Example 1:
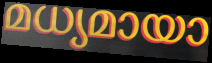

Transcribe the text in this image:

മധ്യമായാ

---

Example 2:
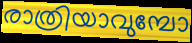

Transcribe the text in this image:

രാത്രിയാവുമ്പോ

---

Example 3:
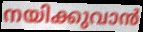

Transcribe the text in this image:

നയിക്കുവാൻ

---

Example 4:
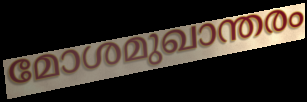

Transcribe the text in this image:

മോശമുഖാന്തരം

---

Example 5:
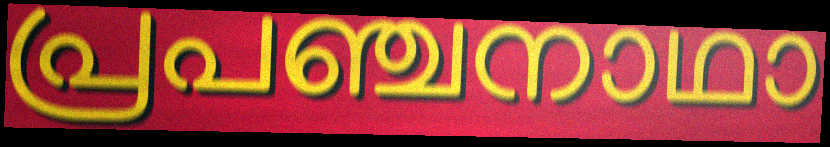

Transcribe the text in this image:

പ്രപഞ്ചനാഥാ